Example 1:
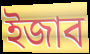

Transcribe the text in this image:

ইজাব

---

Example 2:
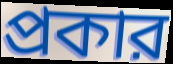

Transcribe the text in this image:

প্রকার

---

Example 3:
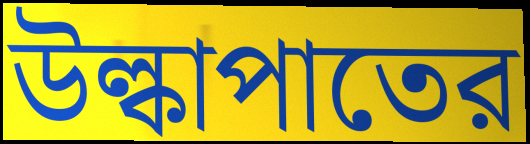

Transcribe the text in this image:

উল্কাপাতের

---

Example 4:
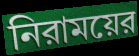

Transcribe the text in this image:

নিরাময়ের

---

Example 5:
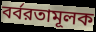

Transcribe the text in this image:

বর্বরতামূলক